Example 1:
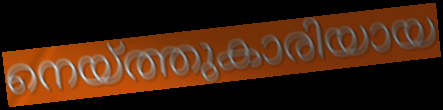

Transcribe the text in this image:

നെയ്ത്തുകാരിയായ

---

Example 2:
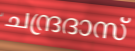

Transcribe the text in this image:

ചന്ദ്രദാസ്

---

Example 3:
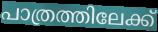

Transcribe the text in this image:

പാത്രത്തിലേക്ക്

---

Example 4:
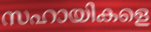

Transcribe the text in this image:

സഹായികളെ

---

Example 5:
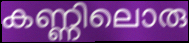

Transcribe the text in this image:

കണ്ണിലൊരു